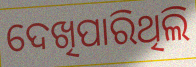
ଦେଖିପାରିଥିଲି